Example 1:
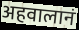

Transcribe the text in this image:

अहवालानं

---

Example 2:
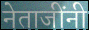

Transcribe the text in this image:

नेताजींनी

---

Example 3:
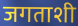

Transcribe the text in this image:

जगताशी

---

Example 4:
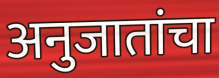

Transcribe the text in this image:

अनुजातांचा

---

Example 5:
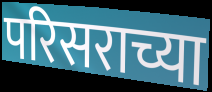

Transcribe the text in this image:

परिसराच्या